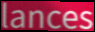
lances